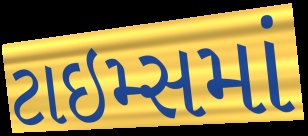
ટાઇમ્સમાં